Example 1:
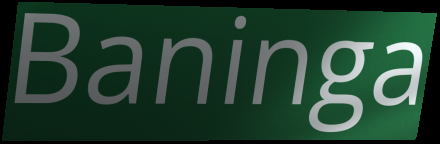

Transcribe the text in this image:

Baninga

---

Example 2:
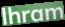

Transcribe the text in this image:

lhram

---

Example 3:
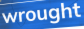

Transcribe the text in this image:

wrought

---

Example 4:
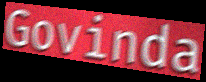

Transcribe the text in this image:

Govinda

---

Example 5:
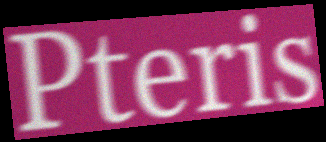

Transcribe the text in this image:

Pteris